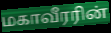
மகாவீரரின்